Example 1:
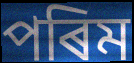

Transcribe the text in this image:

পৰিম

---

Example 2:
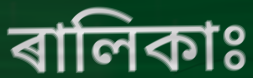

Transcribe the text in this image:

ৰালিকাঃ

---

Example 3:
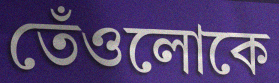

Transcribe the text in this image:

তেঁওলোকে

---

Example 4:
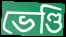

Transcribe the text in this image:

ভেণ্ডি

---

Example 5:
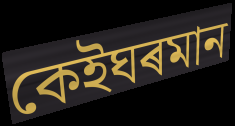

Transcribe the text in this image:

কেইঘৰমান